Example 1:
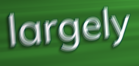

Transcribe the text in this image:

largely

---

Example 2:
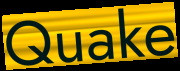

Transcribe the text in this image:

Quake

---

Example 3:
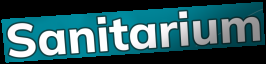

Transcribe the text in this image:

Sanitarium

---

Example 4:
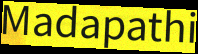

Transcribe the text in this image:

Madapathi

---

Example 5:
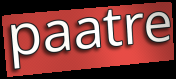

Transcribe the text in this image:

paatre